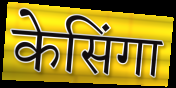
केसिंगा